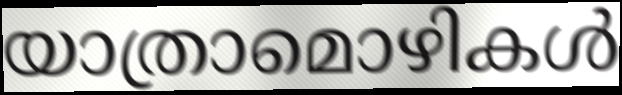
യാത്രാമൊഴികൾ